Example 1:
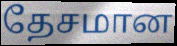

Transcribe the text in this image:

தேசமான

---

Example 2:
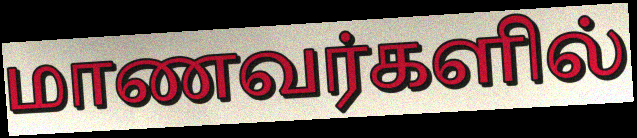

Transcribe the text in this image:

மாணவர்களில்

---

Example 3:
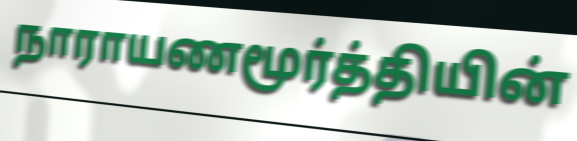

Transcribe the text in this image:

நாராயணமூர்த்தியின்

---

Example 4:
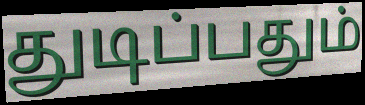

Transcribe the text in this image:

துடிப்பதும்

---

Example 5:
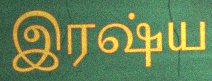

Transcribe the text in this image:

இரஷ்ய